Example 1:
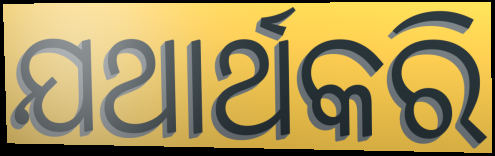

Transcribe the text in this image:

ଯଥାର୍ଥକରି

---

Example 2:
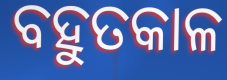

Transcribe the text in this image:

ବହୁତକାଳ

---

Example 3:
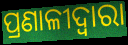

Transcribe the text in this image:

ପ୍ରଣାଳୀଦ୍ୱାରା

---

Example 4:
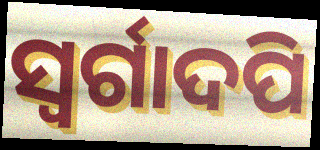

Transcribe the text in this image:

ସ୍ୱର୍ଗାଦପି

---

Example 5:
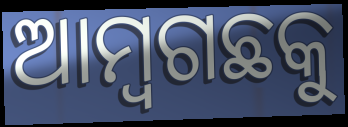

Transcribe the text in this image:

ଆମ୍ବଗଛକୁ